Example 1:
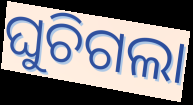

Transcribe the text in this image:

ଘୁଚିଗଲା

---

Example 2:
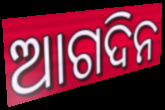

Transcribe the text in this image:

ଆଗଦିନ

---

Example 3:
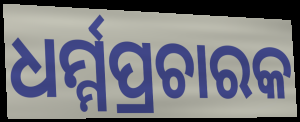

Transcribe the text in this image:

ଧର୍ମ୍ମପ୍ରଚାରକ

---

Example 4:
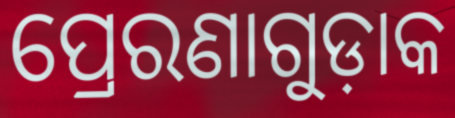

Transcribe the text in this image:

ପ୍ରେରଣାଗୁଡ଼ାକ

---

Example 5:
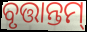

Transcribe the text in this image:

ବୃତ୍ତାନ୍ତମ୍